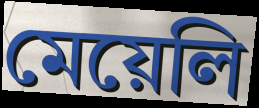
মেয়েলি